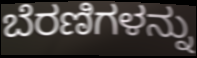
ಬೆರಣಿಗಳನ್ನು